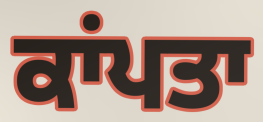
ਕਾਂਪਤਾ